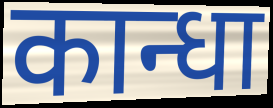
कान्धा